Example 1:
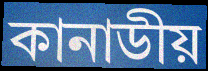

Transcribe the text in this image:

কানাডীয়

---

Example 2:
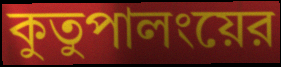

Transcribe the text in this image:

কুতুপালংয়ের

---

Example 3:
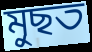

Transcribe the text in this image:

মুছত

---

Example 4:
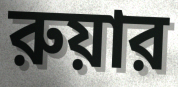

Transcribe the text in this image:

রুয়ার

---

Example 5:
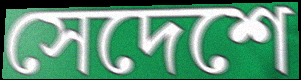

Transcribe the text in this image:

সেদেশে